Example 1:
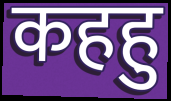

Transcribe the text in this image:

कहहु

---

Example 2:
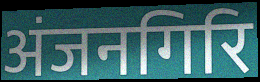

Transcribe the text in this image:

अंजनगिरि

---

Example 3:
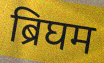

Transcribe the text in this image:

ब्रिघम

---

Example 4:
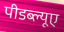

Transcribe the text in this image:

पीडब्ल्यूए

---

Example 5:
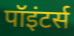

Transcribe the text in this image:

पॉइंटर्स